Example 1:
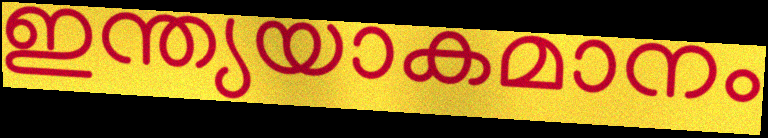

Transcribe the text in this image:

ഇന്ത്യയാകമാനം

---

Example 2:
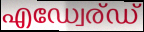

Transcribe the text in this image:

എഡ്വേര്ഡ്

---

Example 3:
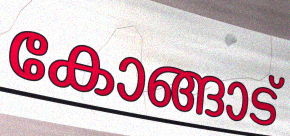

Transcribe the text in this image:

കോങ്ങാട്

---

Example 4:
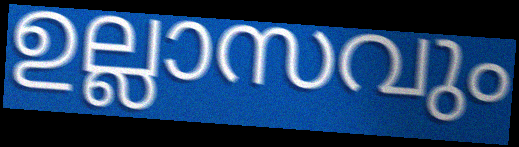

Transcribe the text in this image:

ഉല്ലാസവും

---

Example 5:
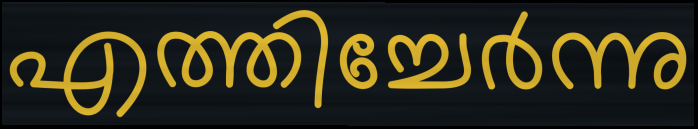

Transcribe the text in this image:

എത്തിച്ചേർന്നു